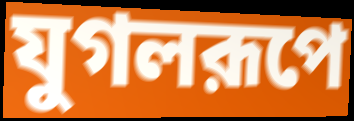
যুগলরূপে